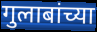
गुलाबांच्या